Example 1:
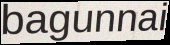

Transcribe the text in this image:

bagunnai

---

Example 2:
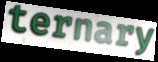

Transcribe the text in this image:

ternary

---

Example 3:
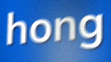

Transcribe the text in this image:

hong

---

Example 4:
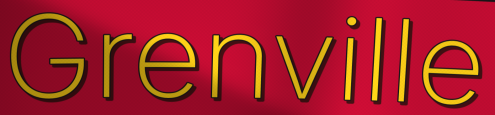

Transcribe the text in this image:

Grenville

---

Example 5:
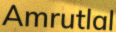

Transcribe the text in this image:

Amrutlal